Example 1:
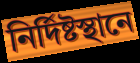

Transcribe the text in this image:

নির্দিষ্টস্থানে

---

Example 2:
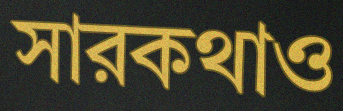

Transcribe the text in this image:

সারকথাও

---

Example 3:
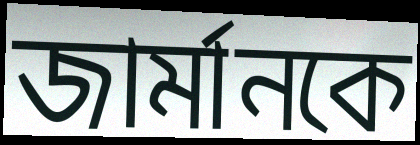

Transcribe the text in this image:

জার্মানকে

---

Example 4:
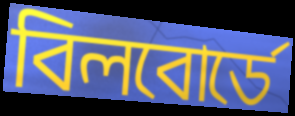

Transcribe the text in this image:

বিলবোর্ডে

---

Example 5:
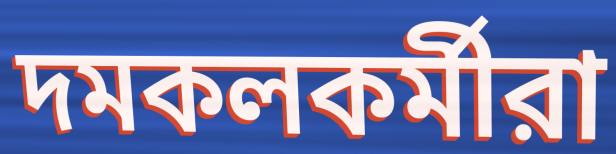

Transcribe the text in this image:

দমকলকর্মীরা